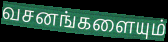
வசனங்களையும்